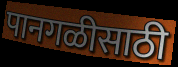
पानगळीसाठी